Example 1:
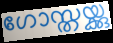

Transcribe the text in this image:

ഗോസ്തയ്ക്കു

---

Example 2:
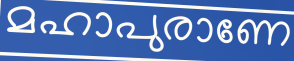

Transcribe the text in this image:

മഹാപുരാണേ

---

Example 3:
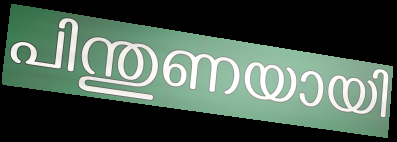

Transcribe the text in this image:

പിന്തുണയായി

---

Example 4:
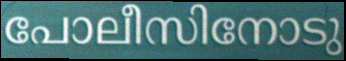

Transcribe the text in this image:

പോലീസിനോടു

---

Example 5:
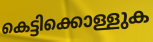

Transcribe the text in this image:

കെട്ടിക്കൊള്ളുക